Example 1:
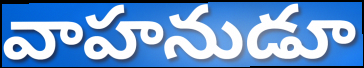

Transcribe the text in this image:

వాహనుడూ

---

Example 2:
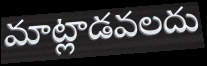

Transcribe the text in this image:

మాట్లాడవలదు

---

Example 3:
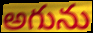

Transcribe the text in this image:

అగును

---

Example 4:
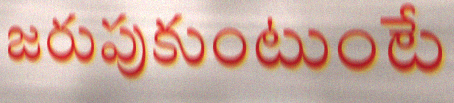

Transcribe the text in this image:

జరుపుకుంటుంటే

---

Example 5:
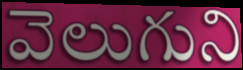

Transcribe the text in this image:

వెలుగుని